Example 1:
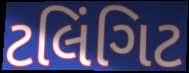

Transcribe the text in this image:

ટલિંગિટ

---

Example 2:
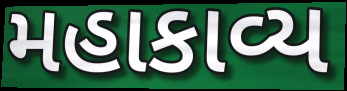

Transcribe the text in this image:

મહાકાવ્ય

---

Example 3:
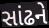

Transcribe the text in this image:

સાંઢને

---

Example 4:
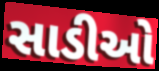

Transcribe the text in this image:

સાડીઓ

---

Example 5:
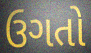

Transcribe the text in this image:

ઉગતો